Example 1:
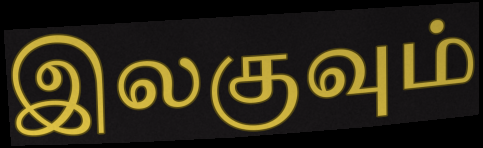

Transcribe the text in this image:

இலகுவும்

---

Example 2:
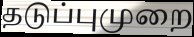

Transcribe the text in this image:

தடுப்புமுறை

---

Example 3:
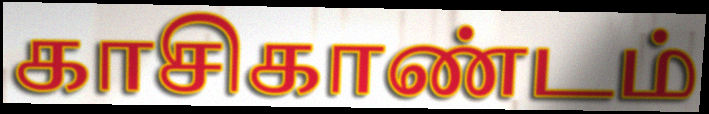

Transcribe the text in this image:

காசிகாண்டம்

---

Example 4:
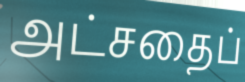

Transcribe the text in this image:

அட்சதைப்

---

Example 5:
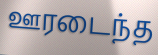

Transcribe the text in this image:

ஊரடைந்த